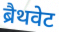
ब्रैथवेट